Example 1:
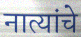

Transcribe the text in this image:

नात्यांचे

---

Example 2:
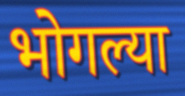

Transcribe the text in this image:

भोगल्या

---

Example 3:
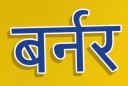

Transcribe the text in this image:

बर्नर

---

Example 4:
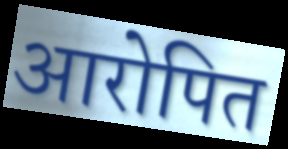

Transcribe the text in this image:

आरोपित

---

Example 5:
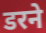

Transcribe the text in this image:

डरने